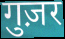
गुज़र